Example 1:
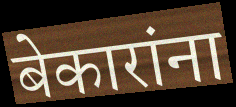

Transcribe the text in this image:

बेकारांना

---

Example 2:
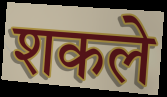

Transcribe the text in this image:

शकले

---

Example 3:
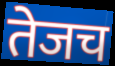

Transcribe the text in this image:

तेजच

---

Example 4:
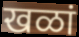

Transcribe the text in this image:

खळां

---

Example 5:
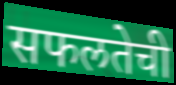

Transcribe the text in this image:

सफलतेची